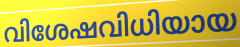
വിശേഷവിധിയായ